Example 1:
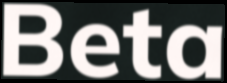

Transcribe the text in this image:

Beta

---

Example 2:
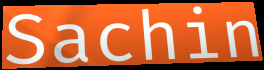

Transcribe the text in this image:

Sachin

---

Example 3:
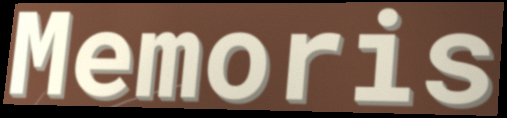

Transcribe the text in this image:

Memoris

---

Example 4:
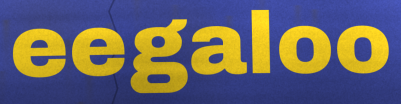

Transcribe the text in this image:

eegaloo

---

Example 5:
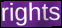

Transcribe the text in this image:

rights